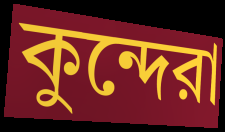
কুন্দেরা